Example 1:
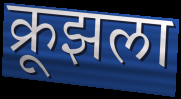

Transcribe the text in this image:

क्रूझला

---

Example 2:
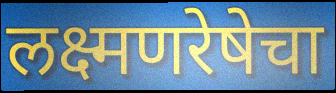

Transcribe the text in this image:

लक्ष्मणरेषेचा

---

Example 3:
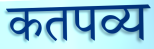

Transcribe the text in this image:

कतपव्य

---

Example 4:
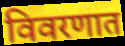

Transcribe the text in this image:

विवरणात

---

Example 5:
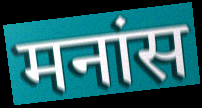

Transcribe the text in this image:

मनांस